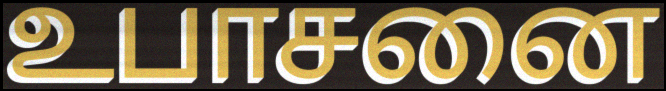
உபாசனை